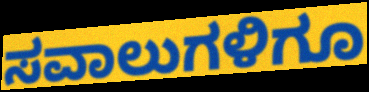
ಸವಾಲುಗಳಿಗೂ